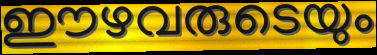
ഈഴവരുടെയും